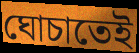
ঘোচাতেই